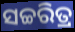
ସଚ୍ଚରିତ୍ର